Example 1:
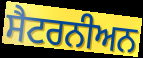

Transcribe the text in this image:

ਸੈਟਰਨੀਅਨ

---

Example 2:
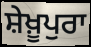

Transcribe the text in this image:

ਸ਼ੇਖ਼ੂਪੁਰਾ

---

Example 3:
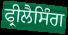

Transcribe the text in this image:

ਫ੍ਰੀਲੈਸਿੰਗ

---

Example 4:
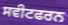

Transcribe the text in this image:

ਸਵੀਟਫਰਨ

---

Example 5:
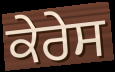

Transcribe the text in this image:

ਕੇਰੇਸ